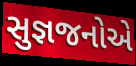
સુજ્ઞજનોએ